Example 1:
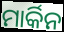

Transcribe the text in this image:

ମାର୍କିନ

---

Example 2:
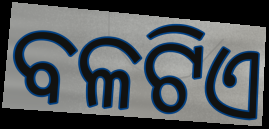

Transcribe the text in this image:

ବଳଟିଏ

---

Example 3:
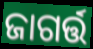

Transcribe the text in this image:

ଜାଗର୍ତ୍ତ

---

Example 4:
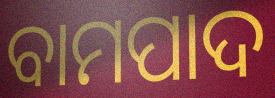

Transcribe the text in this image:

ବାମପାଦ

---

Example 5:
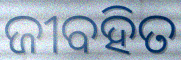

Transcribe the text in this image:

ଜୀବହିତ